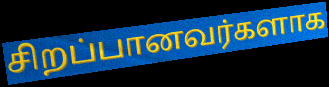
சிறப்பானவர்களாக